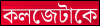
কলজেটাকে